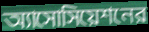
অ্যাসোসিয়েশনের